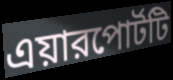
এয়ারপোর্টটি